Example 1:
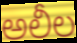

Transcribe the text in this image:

అలీల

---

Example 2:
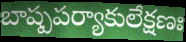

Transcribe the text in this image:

బాష్పపర్యాకులేక్షణః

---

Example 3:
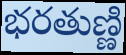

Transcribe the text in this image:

భరతుణ్ణి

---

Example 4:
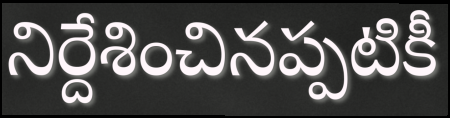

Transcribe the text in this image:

నిర్దేశించినప్పటికీ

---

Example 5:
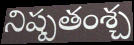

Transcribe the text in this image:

నిష్పతంశ్చ